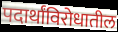
पदार्थांविरोधातील